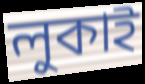
লুকাই